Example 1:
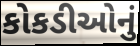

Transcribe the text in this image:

કોકડીઓનું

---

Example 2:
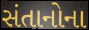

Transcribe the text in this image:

સંતાનોના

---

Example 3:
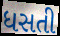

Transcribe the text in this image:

ધસતી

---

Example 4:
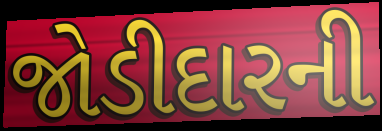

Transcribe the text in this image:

જોડીદારની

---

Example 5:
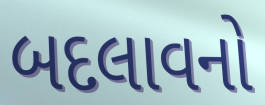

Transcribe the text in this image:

બદલાવનો